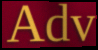
Adv